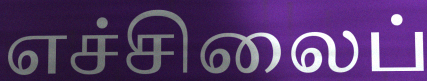
எச்சிலைப்